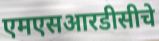
एमएसआरडीसीचे